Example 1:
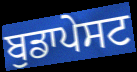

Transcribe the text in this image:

ਬੁਡਾਪੇਸਟ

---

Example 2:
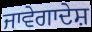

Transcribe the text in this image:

ਜਾਵੇਗਾਦੇਸ਼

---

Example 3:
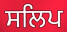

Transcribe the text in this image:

ਸਲਿਪ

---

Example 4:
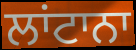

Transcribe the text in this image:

ਲਾਂਟਾਨਾ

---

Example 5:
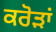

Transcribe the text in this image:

ਕਰੋਡ਼ਾਂ